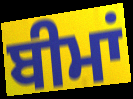
ਬੀਮਾਂ